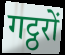
गट्ठरों